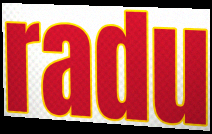
radu